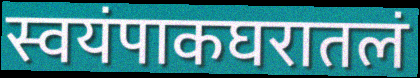
स्वयंपाकघरातलं